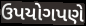
ઉપયોગપણે